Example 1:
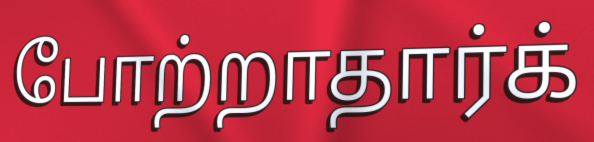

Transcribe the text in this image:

போற்றாதார்க்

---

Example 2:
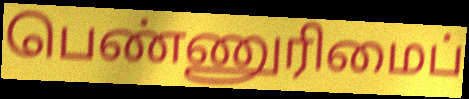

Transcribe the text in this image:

பெண்ணுரிமைப்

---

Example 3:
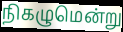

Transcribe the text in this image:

நிகழுமென்று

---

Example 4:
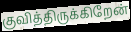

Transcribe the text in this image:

குவித்திருக்கிறேன்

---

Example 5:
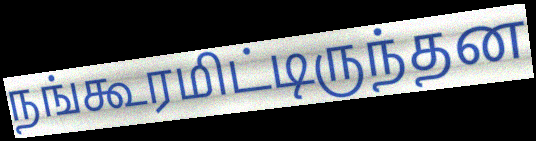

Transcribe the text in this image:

நங்கூரமிட்டிருந்தன